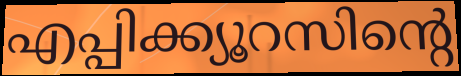
എപ്പിക്ക്യൂറസിന്റെ